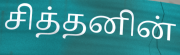
சித்தனின்